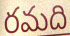
రమది